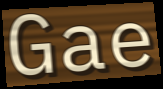
Gae